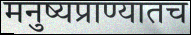
मनुष्यप्राण्यातच